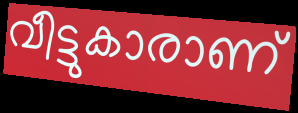
വീട്ടുകാരാണ്